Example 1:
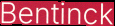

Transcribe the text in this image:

Bentinck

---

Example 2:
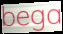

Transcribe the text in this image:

bega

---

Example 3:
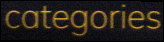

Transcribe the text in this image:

categories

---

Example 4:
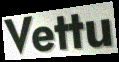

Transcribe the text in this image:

Vettu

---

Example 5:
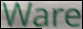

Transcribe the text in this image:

Ware